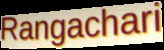
Rangachari